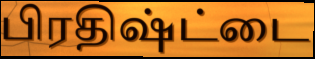
பிரதிஷ்ட்டை